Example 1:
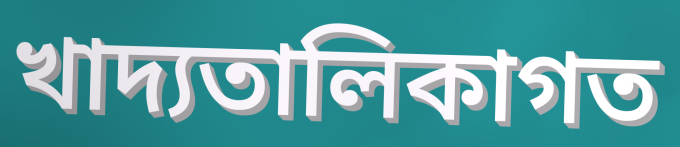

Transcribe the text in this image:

খাদ্যতালিকাগত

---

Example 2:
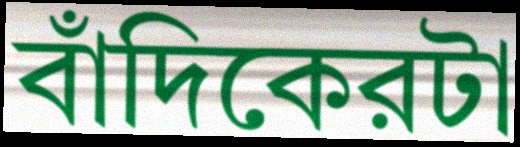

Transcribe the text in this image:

বাঁদিকেরটা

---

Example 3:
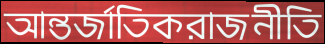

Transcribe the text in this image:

আন্তর্জাতিকরাজনীতি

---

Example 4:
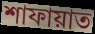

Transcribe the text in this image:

শাফায়াত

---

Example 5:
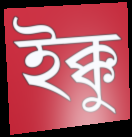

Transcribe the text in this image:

ইক্কু